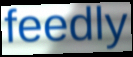
feedly